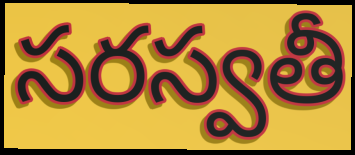
సరస్వతీ